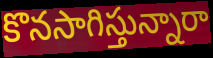
కొనసాగిస్తున్నారా